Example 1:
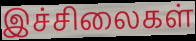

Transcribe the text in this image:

இச்சிலைகள்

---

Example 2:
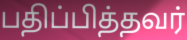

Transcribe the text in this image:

பதிப்பித்தவர்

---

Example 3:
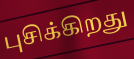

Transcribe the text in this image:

புசிக்கிறது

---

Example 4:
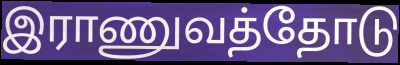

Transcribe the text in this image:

இராணுவத்தோடு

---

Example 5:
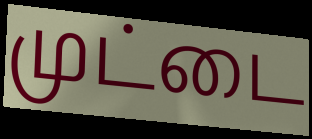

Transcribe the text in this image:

முட்டை